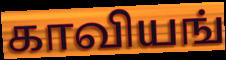
காவியங்